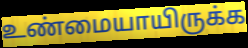
உண்மையாயிருக்க